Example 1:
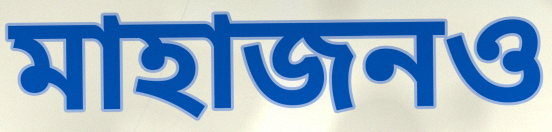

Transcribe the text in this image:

মাহাজনও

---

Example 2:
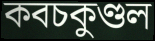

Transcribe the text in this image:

কবচকুণ্ডল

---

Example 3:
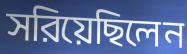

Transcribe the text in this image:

সরিয়েছিলেন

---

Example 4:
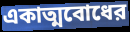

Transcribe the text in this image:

একাত্মবোধের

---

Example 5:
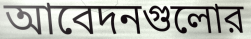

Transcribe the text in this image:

আবেদনগুলোর